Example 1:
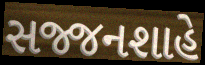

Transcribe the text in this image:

સજ્જનશાહે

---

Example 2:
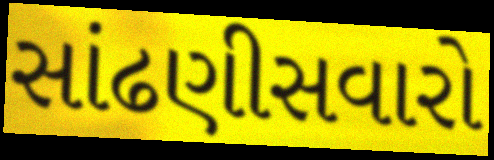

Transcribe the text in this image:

સાંઢણીસવારો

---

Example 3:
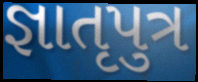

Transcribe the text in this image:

જ્ઞાતૃપુત્ર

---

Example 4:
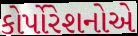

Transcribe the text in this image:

કોર્પોરેશનોએ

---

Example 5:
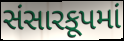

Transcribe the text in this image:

સંસારકૂપમાં